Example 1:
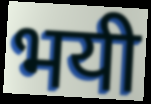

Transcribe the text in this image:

भयी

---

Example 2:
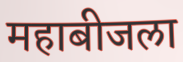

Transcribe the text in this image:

महाबीजला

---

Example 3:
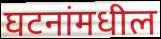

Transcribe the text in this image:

घटनांमधील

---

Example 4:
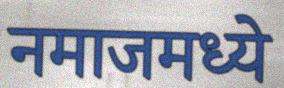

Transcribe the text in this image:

नमाजमध्ये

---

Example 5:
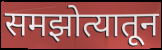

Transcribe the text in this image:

समझोत्यातून